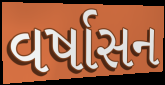
વર્ષાસન